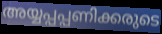
അയ്യപ്പപ്പണിക്കരുടെ